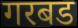
गरबड